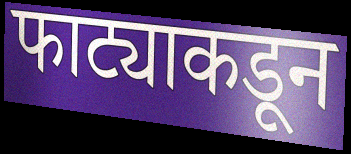
फाट्याकडून